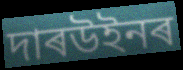
দাৰউইনৰ